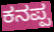
ಕನಪ್ಪ